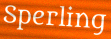
Sperling